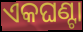
ଏକଘଣ୍ଟା